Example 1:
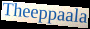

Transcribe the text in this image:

Theeppaala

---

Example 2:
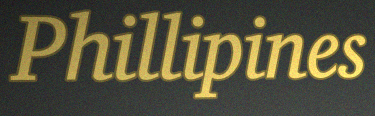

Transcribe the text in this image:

Phillipines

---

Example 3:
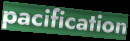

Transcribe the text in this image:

pacification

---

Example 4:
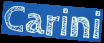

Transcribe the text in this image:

Carini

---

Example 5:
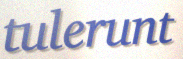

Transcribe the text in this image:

tulerunt